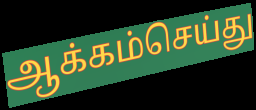
ஆக்கம்செய்து